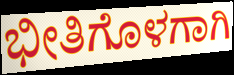
ಭೀತಿಗೊಳಗಾಗಿ